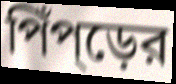
পিঁপ্ড়ের